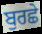
ਬੁਰਛੇ